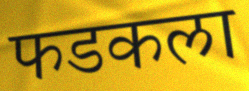
फडकला